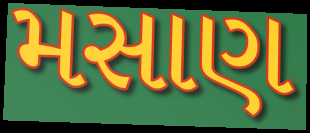
મસાણ